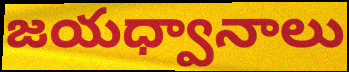
జయధ్వానాలు